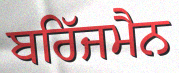
ਬਰਿੱਜਮੈਨ